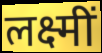
लक्ष्मीं